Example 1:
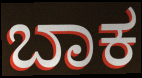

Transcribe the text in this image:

ಬಾಕ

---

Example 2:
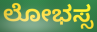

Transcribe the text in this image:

ಲೋಭಸ್ಸ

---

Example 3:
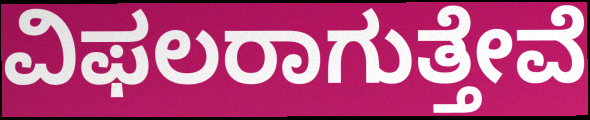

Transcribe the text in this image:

ವಿಫಲರಾಗುತ್ತೇವೆ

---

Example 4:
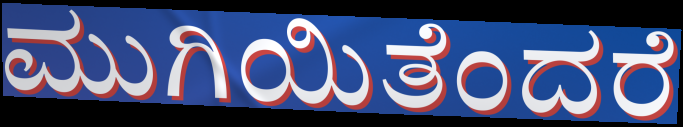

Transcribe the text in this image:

ಮುಗಿಯಿತೆಂದರೆ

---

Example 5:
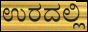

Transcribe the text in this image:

ಉರದಲ್ಲಿ